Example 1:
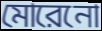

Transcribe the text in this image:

মোরেনো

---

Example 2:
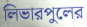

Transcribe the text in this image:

লিভারপুলের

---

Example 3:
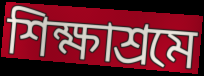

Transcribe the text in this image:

শিক্ষাশ্রমে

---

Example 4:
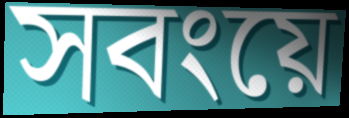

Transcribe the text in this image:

সবংয়ে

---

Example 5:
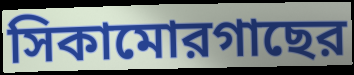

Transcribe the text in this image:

সিকামোরগাছের